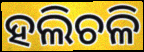
ହଲିଚଳି